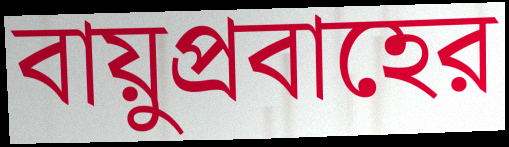
বায়ুপ্রবাহের